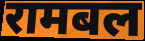
रामबल